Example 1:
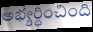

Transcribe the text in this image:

అభ్యర్థించింది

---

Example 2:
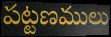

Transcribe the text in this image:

పట్టణములు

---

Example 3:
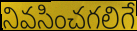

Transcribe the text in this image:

నివసించగలిగే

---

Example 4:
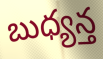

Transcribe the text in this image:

బుధ్యన్త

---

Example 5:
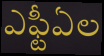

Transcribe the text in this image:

ఎఫ్టీఏల